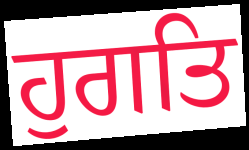
ਹੁਗਤਿ